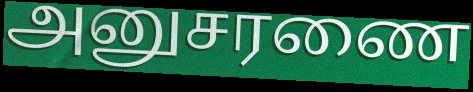
அனுசரணை